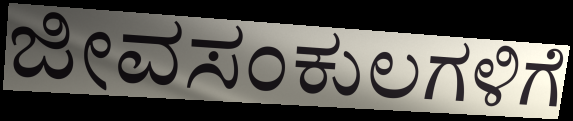
ಜೀವಸಂಕುಲಗಳಿಗೆ